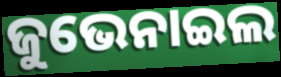
ଜୁଭେନାଇଲ